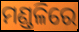
ମଣ୍ଡଳିରେ